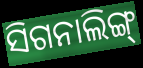
ସିଗନାଲିଙ୍ଗ୍